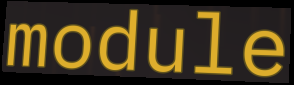
module